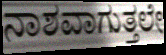
ನಾಶವಾಗುತ್ತಲೇ